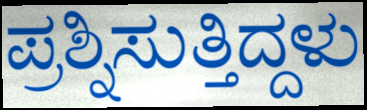
ಪ್ರಶ್ನಿಸುತ್ತಿದ್ದಳು